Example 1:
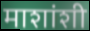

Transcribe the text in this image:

माशांशी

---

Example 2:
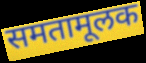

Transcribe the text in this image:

समतामूलक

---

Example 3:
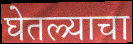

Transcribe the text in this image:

घेतल्याचा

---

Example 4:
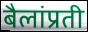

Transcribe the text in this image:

बैलांप्रती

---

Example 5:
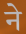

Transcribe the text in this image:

ने